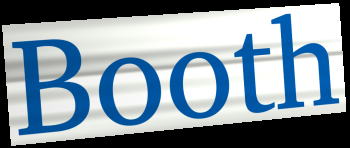
Booth